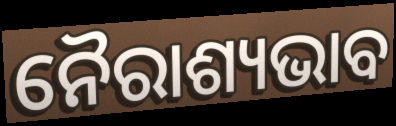
ନୈରାଶ୍ୟଭାବ